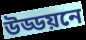
উড্ডয়নে